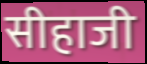
सीहाजी